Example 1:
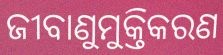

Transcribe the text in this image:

ଜୀବାଣୁମୁକ୍ତିକରଣ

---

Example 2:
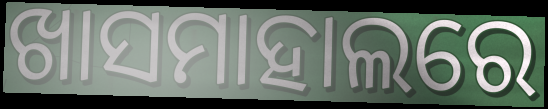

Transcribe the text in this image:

ଖାସମାହାଲରେ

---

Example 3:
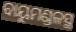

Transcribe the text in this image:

ବାୟୁମଣ୍ଡଳସ୍ଥ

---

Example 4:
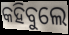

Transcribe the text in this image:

କହିବୁଲେ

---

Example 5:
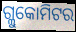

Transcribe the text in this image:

ଗ୍ଲୁକୋମିଟର